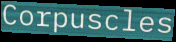
Corpuscles